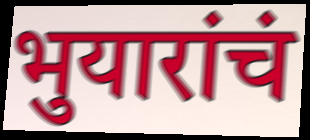
भुयारांचं